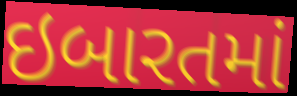
ઇબારતમાં